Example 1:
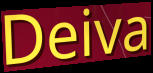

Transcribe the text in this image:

Deiva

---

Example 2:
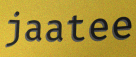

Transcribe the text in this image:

jaatee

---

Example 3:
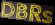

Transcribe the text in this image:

DBRs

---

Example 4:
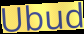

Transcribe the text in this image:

Ubud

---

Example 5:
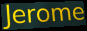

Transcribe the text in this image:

Jerome